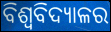
ବିଶ୍ୱବିଦ୍ୟାଳର